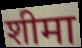
शीमा